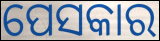
ପେସକାର